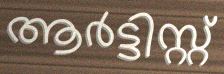
ആർട്ടിസ്റ്റ്